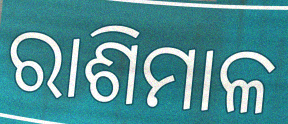
ରାଶିମାଳ